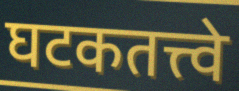
घटकतत्त्वे